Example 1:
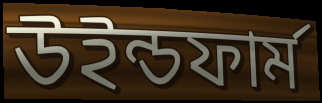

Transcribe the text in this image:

উইন্ডফার্ম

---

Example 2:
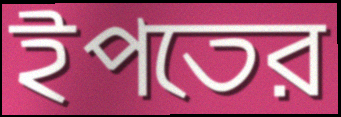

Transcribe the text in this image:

ইপতের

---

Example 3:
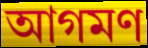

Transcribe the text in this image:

আগমণ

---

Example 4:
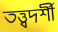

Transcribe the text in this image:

তত্ত্বদর্শী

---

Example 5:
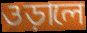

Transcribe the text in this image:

ওড়ালে